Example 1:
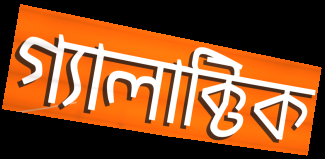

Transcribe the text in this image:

গ্যালাক্টিক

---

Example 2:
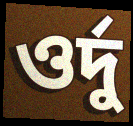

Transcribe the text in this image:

ওর্দু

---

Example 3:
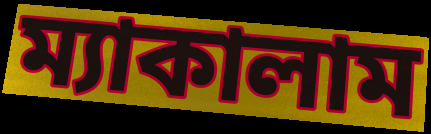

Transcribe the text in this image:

ম্যাকালাম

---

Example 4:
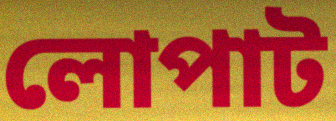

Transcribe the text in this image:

লোপাট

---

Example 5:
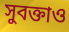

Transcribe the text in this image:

সুবক্তাও